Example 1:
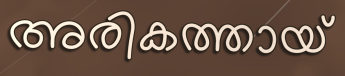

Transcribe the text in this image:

അരികത്തായ്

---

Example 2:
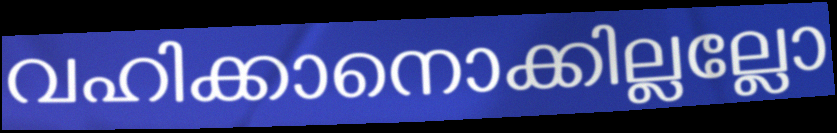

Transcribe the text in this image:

വഹിക്കാനൊക്കില്ലല്ലോ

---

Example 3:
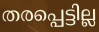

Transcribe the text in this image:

തരപ്പെട്ടില്ല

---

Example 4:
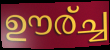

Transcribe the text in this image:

ഊര്ച്ച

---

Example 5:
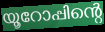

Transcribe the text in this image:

യൂറോപ്പിന്റെ